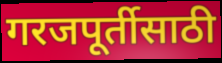
गरजपूर्तीसाठी